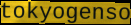
tokyogenso